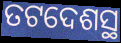
ତଟଦେଶସ୍ଥ